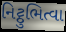
નિટ્ઠુભિત્વા